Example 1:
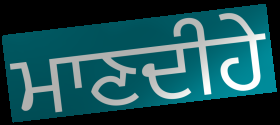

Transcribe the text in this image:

ਮਾਣਦੀਹੇ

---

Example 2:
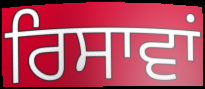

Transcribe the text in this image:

ਰਿਸਾਵਾਂ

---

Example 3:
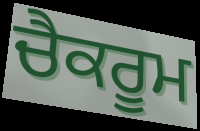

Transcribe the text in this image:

ਚੈਕਰੂਮ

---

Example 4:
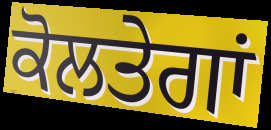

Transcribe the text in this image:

ਕੋਲਤੇਗਾਂ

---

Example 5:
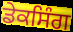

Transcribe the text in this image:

ਡੇਕਸਿੰਗ